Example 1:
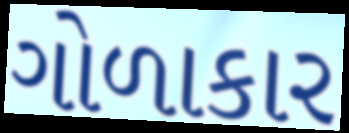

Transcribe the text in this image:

ગોળાકાર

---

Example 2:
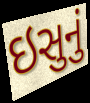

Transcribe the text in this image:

ઇસુનું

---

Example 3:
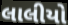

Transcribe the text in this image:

લાલીયો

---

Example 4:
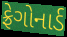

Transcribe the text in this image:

ફ્રેગોનાર્ડ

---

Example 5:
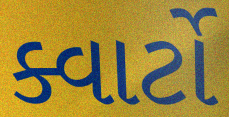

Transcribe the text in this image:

ક્વાર્ટો